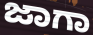
ಜಾಗಾ